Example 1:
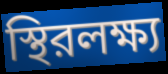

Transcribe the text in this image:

স্থিরলক্ষ্য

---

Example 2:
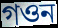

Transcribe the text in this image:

গওন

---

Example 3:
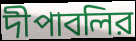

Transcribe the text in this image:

দীপাবলির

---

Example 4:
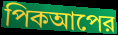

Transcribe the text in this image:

পিকআপের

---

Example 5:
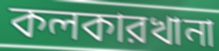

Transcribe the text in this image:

কলকারখানা